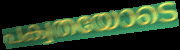
പക്വതയോടെ